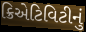
ક્રિએટિવિટીનું